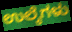
ಉಲ್ಕೆಗಳು